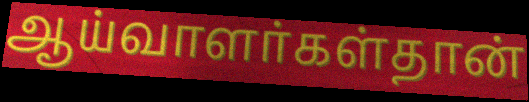
ஆய்வாளர்கள்தான்